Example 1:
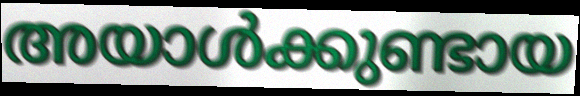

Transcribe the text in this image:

അയാൾക്കുണ്ടായ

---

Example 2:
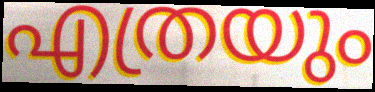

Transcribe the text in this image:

എത്രയും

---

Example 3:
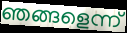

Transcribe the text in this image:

ഞങ്ങളെന്ന്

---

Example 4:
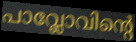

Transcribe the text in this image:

പാവ്ലോവിന്റെ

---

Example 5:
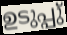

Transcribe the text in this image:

ഉടുപ്പു്